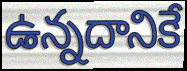
ఉన్నదానికే